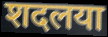
शदलया